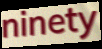
ninety